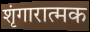
शृंगारात्मक